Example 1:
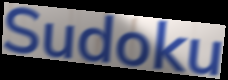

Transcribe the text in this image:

Sudoku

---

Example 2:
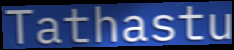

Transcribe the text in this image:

Tathastu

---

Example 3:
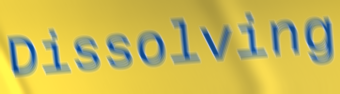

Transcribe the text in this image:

Dissolving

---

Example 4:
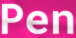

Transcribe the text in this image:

Pen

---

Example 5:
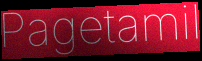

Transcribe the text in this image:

Pagetamil